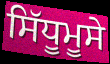
ਸਿੱਧੂਮੂਸੇ